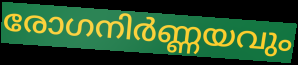
രോഗനിർണ്ണയവും